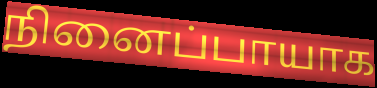
நினைப்பாயாக